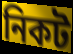
নিকট